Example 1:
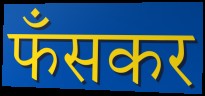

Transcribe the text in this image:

फँसकर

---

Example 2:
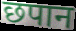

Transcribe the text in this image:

छपान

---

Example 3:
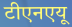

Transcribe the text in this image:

टीएनएयू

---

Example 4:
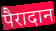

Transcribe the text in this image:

पैरादान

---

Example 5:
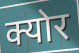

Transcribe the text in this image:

क्योर